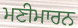
ਮਣੀਮਾਰਨ